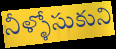
నీళ్ళోసుకుని